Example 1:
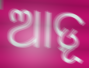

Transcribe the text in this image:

ଆଡ଼ୂ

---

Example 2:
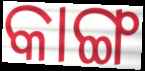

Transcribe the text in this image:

କାଙ୍ଗ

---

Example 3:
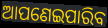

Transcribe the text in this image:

ଆପଣେଇପାରିବ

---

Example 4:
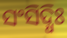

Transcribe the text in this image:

ସଂସିଦ୍ଧିଃ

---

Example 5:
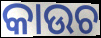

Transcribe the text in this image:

କାଉଚ